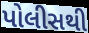
પોલીસથી